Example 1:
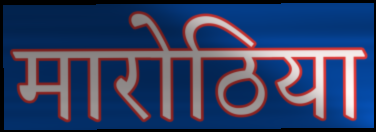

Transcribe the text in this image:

मारोठिया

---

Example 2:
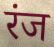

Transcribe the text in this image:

रंज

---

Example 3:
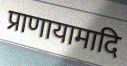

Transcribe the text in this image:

प्राणायामादि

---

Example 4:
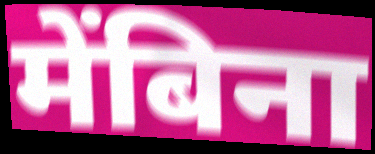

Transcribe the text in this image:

मेंबिना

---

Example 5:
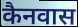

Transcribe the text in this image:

कैनवास